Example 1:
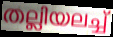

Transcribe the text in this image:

തല്ലിയലച്ച്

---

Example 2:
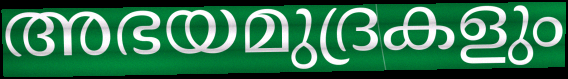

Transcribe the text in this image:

അഭയമുദ്രകളും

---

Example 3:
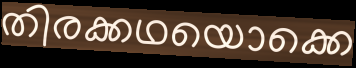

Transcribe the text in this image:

തിരക്കഥയൊക്കെ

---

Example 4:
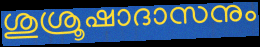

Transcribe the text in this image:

ശുശ്രൂഷാദാസനും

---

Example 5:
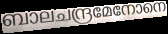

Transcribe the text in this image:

ബാലചന്ദ്രമേനോനെ